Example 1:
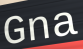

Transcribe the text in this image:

Gna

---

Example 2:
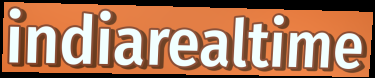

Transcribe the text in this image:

indiarealtime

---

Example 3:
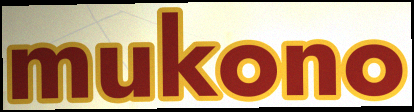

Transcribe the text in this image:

mukono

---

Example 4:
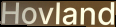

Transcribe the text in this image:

Hovland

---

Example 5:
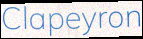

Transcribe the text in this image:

Clapeyron